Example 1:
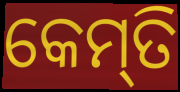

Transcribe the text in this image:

କେମ୍‍ତି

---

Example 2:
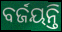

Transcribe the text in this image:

ବର୍ଜୟନ୍ତି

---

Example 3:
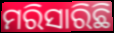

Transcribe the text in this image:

ମରିସାରିଛି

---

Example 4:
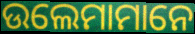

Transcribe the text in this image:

ଉଲେମାମାନେ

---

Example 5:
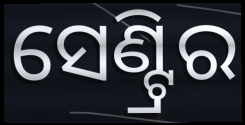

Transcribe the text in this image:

ସେଣ୍ଟ୍ରିର